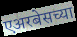
एअरबेसच्या